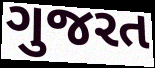
ગુજરત